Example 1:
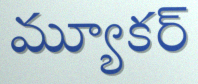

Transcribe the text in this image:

మ్యూకర్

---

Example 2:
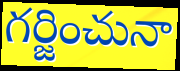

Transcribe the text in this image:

గర్జించునా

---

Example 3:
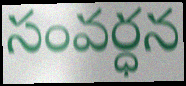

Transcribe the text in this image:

సంవర్ధన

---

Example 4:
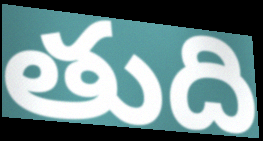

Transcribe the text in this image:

తుది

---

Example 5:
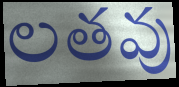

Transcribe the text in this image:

లతవు